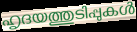
ഹൃദയത്തുടിപ്പുകൾ